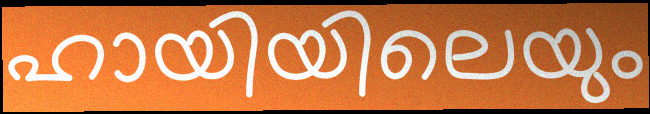
ഹായിയിലെയും